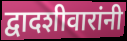
द्वादशीवारांनी